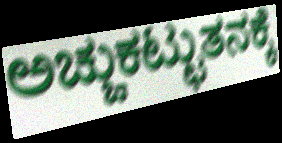
ಅಚ್ಚುಕಟ್ಟುತನಕ್ಕೆ